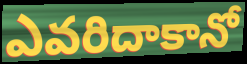
ఎవరిదాకానో